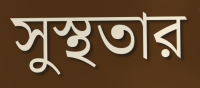
সুস্থতার